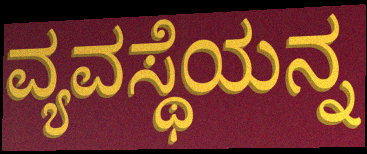
ವ್ಯವಸ್ಥೆಯನ್ನ